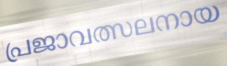
പ്രജാവത്സലനായ